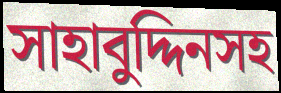
সাহাবুদ্দিনসহ